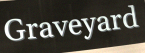
Graveyard